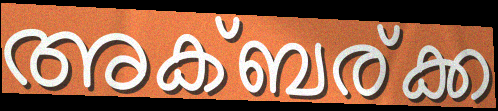
അക്ബര്ക്ക